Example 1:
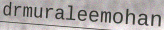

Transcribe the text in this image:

drmuraleemohan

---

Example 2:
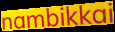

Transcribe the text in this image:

nambikkai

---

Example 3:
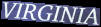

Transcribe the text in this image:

VIRGINIA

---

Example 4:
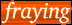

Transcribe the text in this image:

fraying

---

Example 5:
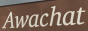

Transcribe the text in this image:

Awachat